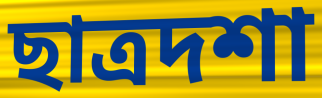
ছাত্রদশা